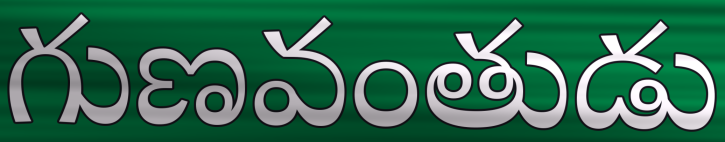
గుణవంతుడు